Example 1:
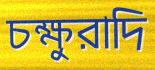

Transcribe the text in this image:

চক্ষুরাদি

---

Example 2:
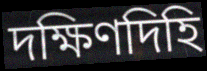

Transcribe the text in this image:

দক্ষিণদিহি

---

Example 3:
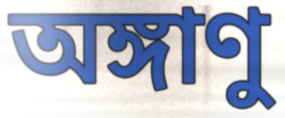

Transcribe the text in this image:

অঙ্গাণু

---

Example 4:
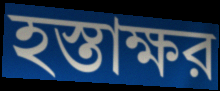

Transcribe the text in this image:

হস্তাক্ষর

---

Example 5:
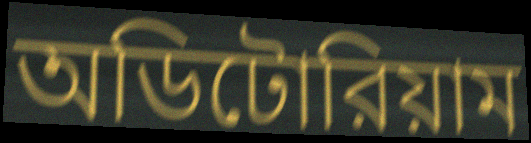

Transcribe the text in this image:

অডিটোরিয়াম